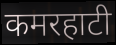
कमरहाटी